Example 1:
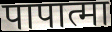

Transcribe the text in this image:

पापात्मा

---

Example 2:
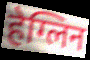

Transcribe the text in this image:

हेग्लिन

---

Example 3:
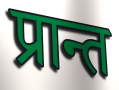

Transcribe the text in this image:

प्रान्त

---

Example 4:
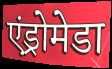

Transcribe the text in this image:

एंड्रोमेडा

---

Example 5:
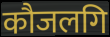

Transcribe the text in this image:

कौजलगि